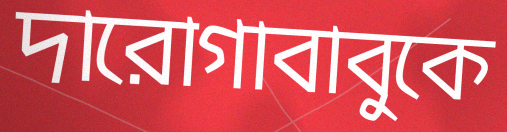
দারোগাবাবুকে